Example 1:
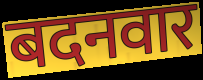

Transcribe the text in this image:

बदनवार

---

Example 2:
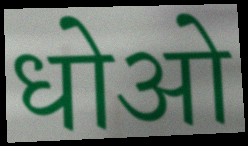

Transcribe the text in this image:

धोओ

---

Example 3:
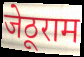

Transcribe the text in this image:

जेठूराम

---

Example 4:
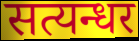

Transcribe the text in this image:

सत्यन्धर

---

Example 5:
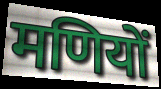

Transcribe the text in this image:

मणियों